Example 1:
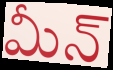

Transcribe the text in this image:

మీన్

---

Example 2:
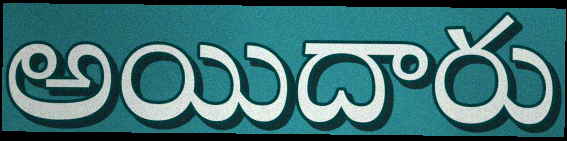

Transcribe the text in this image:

అయిదారు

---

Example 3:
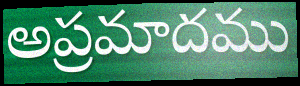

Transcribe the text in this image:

అప్రమాదము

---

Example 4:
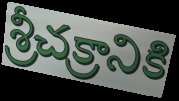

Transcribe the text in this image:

శ్రీచక్రానికి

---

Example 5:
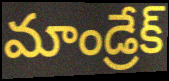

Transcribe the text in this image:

మాండ్రేక్